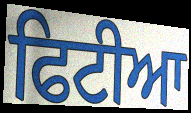
ਫਿਟੀਆ